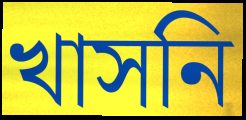
খাসনি